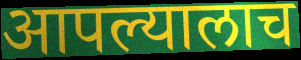
आपल्यालाच